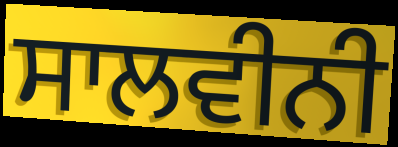
ਸਾਲਵੀਨੀ